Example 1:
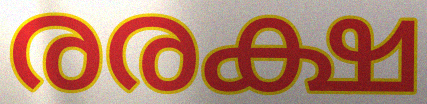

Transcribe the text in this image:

രരക്ഷ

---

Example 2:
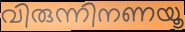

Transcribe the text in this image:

വിരുന്നിനണയൂ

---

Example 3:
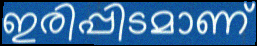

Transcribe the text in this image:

ഇരിപ്പിടമാണ്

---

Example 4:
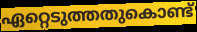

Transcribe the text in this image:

ഏറ്റെടുത്തതുകൊണ്ട്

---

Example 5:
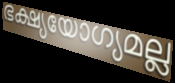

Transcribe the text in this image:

ഭക്ഷ്യയോഗ്യമല്ല